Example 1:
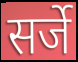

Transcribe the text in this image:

सर्जे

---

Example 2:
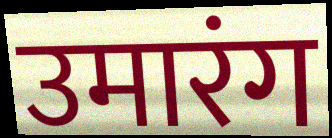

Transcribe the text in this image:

उमारंग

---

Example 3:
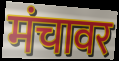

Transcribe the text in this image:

मंचावर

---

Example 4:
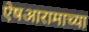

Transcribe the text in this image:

ऐषआरामाच्या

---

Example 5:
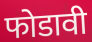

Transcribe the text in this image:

फोडावी